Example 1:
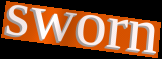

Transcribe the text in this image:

sworn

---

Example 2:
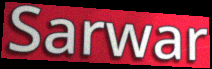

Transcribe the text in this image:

Sarwar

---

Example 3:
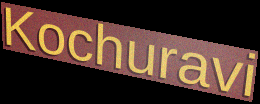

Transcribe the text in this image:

Kochuravi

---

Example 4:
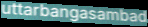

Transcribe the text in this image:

uttarbangasambad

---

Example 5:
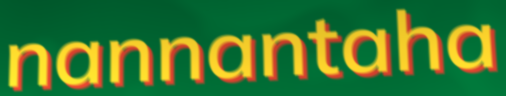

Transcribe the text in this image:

nannantaha